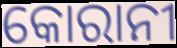
କୋରାନୀ